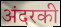
अंदरकी